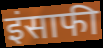
इंसाफी